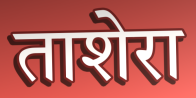
ताशेरा